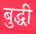
बुद्धी